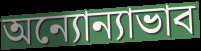
অন্যোন্যাভাব